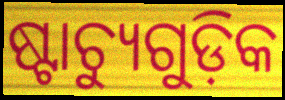
ଷ୍ଟାଚ୍ୟୁଗୁଡ଼ିକ